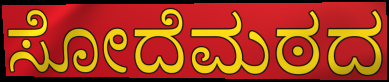
ಸೋದೆಮಠದ